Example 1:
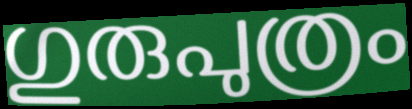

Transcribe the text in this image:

ഗുരുപുത്രം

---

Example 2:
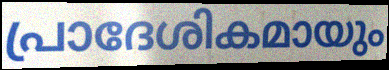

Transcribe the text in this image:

പ്രാദേശികമായും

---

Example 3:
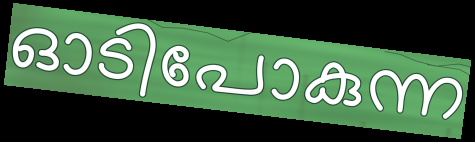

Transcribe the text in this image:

ഓടിപോകുന്ന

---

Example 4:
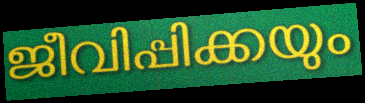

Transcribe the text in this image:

ജീവിപ്പിക്കയും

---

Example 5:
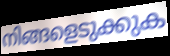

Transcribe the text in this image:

നിങ്ങളെടുക്കുക